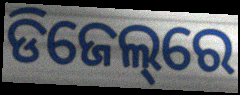
ଡିଜେଲ୍‌ରେ